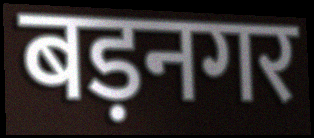
बड़नगर